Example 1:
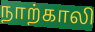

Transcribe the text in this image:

நாற்காலி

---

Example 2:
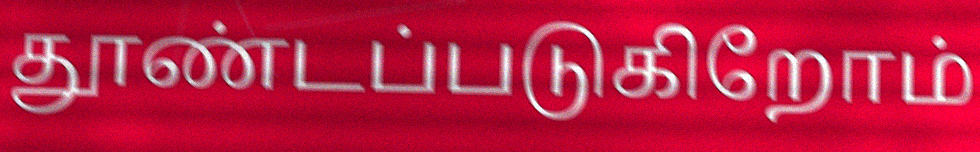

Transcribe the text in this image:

தூண்டப்படுகிறோம்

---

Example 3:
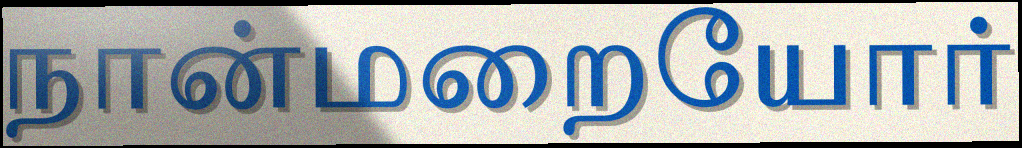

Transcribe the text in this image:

நான்மறையோர்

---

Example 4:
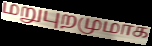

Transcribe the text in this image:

மறுபுறமுமாக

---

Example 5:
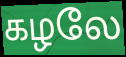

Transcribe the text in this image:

கழலே